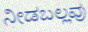
ನೀಡಬಲ್ಲವು